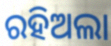
ରହିଅଲା